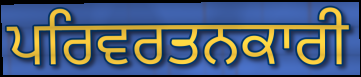
ਪਰਿਵਰਤਨਕਾਰੀ